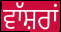
ਵਾੱਸ਼ਰਾਂ